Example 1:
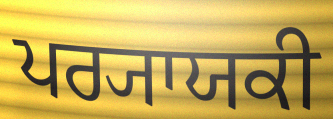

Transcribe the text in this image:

ਪਰ੍ਯਾਯਕੀ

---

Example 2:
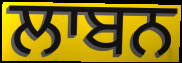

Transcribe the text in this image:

ਲਾਬਨ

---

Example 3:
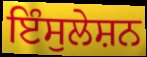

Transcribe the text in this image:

ਇੰਸੁਲੇਸ਼ਨ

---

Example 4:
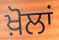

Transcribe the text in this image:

ਖ਼ੋਲਾਂ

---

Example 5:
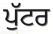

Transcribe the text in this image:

ਪੁੱਟਰ